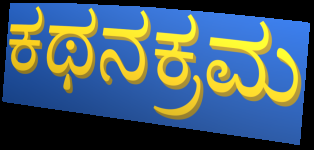
ಕಥನಕ್ರಮ